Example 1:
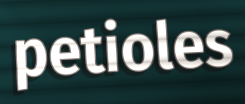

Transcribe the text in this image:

petioles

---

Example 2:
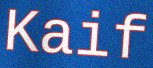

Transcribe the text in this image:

Kaif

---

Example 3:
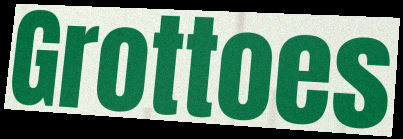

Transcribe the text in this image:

Grottoes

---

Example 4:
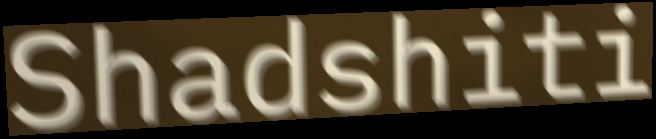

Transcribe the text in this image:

Shadshiti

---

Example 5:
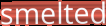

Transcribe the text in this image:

smelted